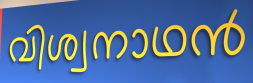
വിശ്വനാഥൻ